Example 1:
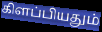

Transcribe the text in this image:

கிளப்பியதும்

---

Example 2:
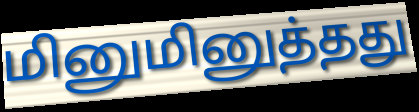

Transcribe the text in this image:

மினுமினுத்தது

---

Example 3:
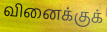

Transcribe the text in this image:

வினைக்குக்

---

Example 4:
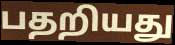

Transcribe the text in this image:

பதறியது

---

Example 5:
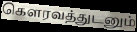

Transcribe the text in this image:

கௌரவத்துடனும்